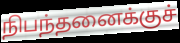
நிபந்தனைக்குச்